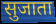
सुजाता